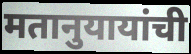
मतानुयायांची